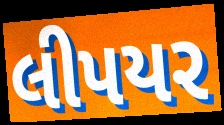
લીપયર